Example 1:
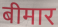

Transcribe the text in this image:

बीमार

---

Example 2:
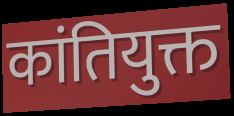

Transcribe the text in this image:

कांतियुक्त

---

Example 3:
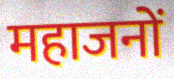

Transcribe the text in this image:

महाजनों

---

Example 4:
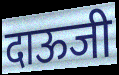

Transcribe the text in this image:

दाऊजी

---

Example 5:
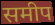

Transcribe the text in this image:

समीप